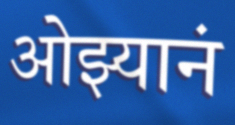
ओझ्यानं